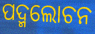
ପଦ୍ମଲୋଚନ